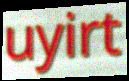
uyirt